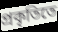
প্রকৃতিতে